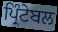
ਪ੍ਰਿੰਟੇਬਲ